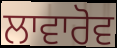
ਲਾਵਾਰੋਵ